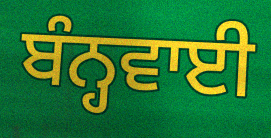
ਬੰਨ੍ਹਵਾਈ